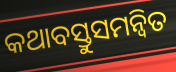
କଥାବସ୍ତୁସମନ୍ୱିତ